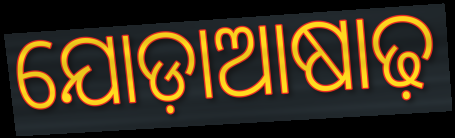
ଯୋଡ଼ାଆଷାଢ଼